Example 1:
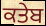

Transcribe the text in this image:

ਕਤੇਬ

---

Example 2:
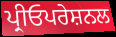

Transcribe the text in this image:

ਪ੍ਰੀਓਪਰੇਸ਼ਨਲ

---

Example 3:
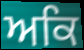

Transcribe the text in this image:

ਅਕਿ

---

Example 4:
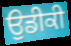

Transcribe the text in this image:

ਉਡੀਕੀ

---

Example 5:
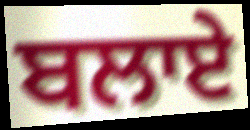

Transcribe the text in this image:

ਬਲਾਏ